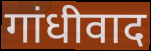
गांधीवाद